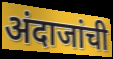
अंदाजांची